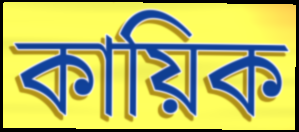
কায়িক